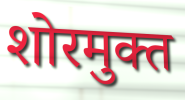
शोरमुक्त